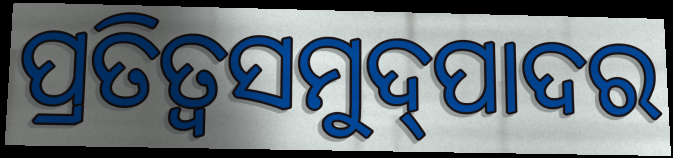
ପ୍ରତିତ୍ଵସମୁଦ୍‌ପାଦର